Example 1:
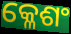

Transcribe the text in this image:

କ୍ଳେଶଂ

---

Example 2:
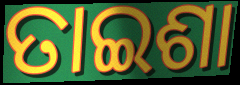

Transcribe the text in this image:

ତାଇଶା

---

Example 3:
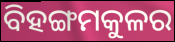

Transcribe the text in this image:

ବିହଙ୍ଗମକୁଳର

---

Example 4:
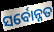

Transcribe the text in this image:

ସର୍ବୋନ୍ନତ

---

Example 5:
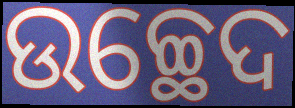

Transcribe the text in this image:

ଉଚ୍ଛେଦ